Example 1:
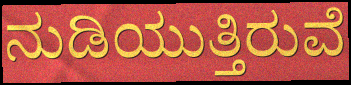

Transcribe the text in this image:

ನುಡಿಯುತ್ತಿರುವೆ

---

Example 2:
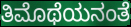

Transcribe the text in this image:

ತಿಮೊಥೆಯನಂತೆ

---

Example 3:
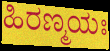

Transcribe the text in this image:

ಹಿರಣ್ಮಯಃ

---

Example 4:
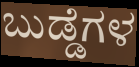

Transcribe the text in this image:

ಬುಡ್ಡೆಗಳ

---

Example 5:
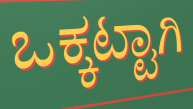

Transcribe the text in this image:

ಒಕ್ಕಟ್ಟಾಗಿ